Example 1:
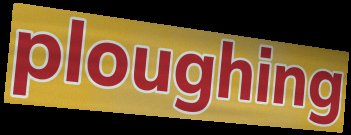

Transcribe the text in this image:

ploughing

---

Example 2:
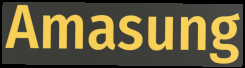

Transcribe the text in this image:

Amasung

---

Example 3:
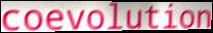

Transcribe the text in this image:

coevolution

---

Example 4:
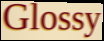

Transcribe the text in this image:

Glossy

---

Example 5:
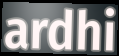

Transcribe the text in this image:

ardhi